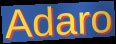
Adaro